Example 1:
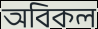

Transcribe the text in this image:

অবিকল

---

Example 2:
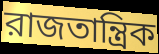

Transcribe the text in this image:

রাজতান্ত্রিক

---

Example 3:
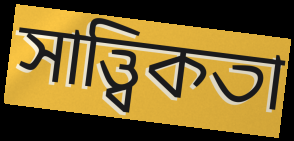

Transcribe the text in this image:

সাত্ত্বিকতা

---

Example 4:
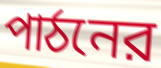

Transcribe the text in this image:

পাঠনের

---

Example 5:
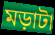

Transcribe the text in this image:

মড়াটা